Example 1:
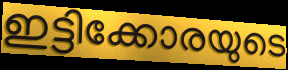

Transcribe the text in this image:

ഇട്ടിക്കോരയുടെ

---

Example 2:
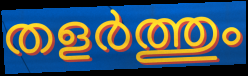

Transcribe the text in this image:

തളർത്തും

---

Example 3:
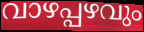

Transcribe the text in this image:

വാഴപ്പഴവും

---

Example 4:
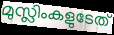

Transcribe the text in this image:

മുസ്ലിംകളുടേത്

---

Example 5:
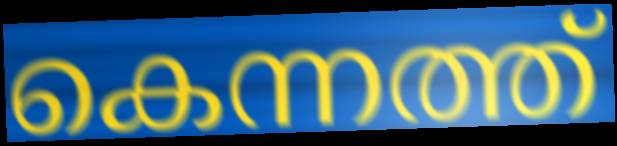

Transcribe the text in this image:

കെന്നത്ത്